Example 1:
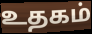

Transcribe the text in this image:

உதகம்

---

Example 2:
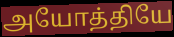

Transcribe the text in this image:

அயோத்தியே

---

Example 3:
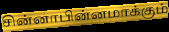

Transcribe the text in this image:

சின்னாபின்னமாக்கும்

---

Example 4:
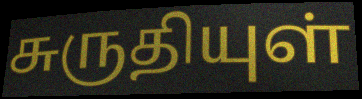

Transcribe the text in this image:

சுருதியுள்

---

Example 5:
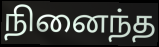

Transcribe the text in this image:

நினைந்த